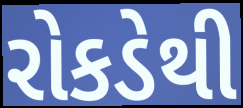
રોકડેથી